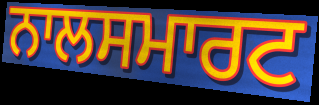
ਨਾਲਸਮਾਰਟ